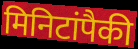
मिनिटांपैकी